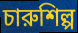
চারুশিল্প